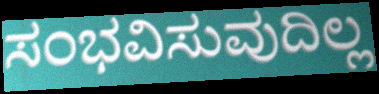
ಸಂಭವಿಸುವುದಿಲ್ಲ